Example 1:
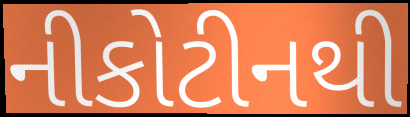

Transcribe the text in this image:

નીકોટીનથી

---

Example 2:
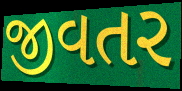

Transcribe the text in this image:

જીવતર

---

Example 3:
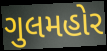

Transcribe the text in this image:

ગુલમહોર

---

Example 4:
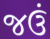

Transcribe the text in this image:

જઉં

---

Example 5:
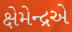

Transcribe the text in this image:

ક્ષેમેન્દ્રએ